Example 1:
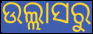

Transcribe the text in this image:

ଉଲ୍ଲାସରୁ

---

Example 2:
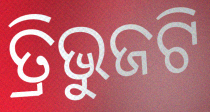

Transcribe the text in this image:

ତ୍ରିଭୁଜଟି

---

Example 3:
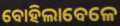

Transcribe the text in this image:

ବୋହିଲାବେଳେ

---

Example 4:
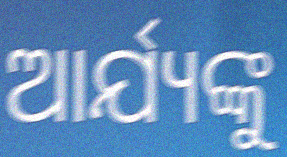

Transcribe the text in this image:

ଆର୍ଯ୍ୟଙ୍କୁ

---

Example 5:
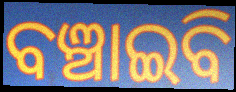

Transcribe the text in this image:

ବଞ୍ଚାଇବି